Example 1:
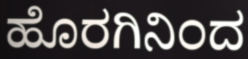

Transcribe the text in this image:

ಹೊರಗಿನಿಂದ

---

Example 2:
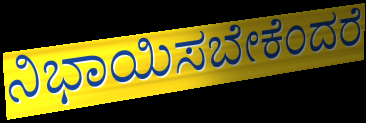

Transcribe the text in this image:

ನಿಭಾಯಿಸಬೇಕೆಂದರೆ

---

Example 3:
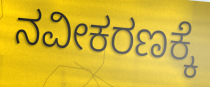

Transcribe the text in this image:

ನವೀಕರಣಕ್ಕೆ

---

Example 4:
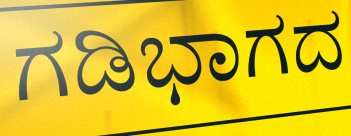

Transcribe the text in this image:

ಗಡಿಭಾಗದ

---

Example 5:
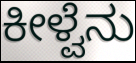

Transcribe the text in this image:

ಕೀಳ್ವೆನು